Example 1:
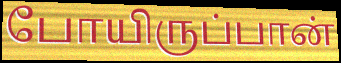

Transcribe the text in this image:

போயிருப்பான்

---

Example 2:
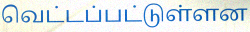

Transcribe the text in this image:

வெட்டப்பட்டுள்ளன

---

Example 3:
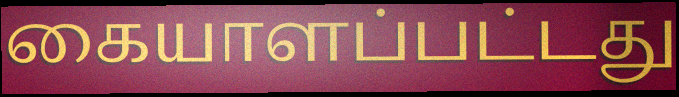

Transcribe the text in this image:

கையாளப்பட்டது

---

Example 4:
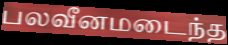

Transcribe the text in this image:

பலவீனமடைந்த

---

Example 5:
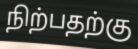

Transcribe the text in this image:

நிற்பதற்கு